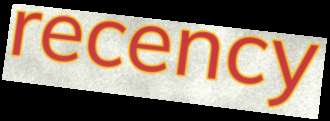
recency